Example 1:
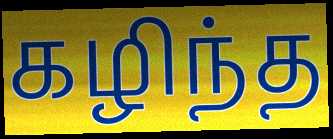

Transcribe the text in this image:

கழிந்த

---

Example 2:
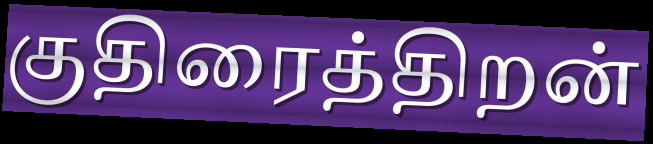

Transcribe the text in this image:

குதிரைத்திறன்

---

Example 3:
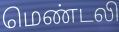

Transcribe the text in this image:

மெண்டலி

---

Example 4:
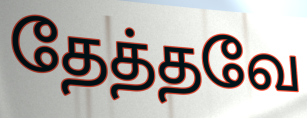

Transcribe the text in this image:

தேத்தவே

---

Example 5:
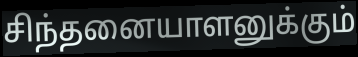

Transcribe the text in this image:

சிந்தனையாளனுக்கும்